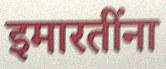
इमारतींना